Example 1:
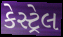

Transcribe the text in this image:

કેસ્ટ્રેલ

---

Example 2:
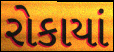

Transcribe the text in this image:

રોકાયાં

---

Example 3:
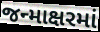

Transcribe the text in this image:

જન્માક્ષરમાં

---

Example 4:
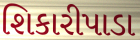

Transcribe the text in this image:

શિકારીપાડા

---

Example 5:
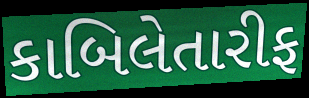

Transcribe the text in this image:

કાબિલેતારીફ